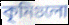
কৃমিগুলো